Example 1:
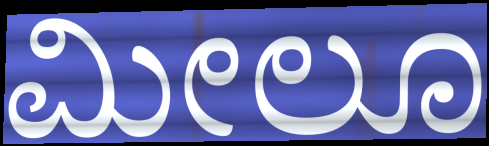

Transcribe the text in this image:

ಮೀಲೂ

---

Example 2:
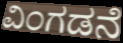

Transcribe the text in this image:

ವಿಂಗಡನೆ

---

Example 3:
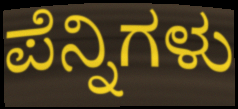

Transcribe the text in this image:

ಪೆನ್ನಿಗಳು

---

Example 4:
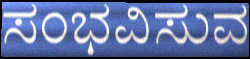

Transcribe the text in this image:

ಸಂಭವಿಸುವ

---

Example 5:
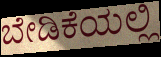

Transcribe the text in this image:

ಬೇಡಿಕೆಯಲ್ಲಿ